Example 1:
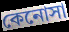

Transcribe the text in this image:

কেনোসা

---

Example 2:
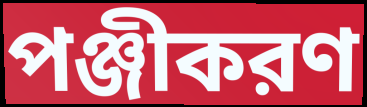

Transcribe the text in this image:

পঞ্জীকরণ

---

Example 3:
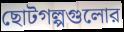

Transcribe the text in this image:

ছোটগল্পগুলোর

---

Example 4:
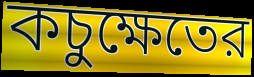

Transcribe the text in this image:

কচুক্ষেতের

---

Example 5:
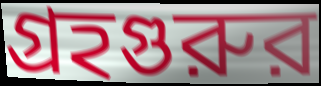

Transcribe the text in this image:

গ্রহগুরুর